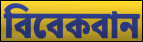
বিবেকবান